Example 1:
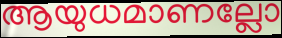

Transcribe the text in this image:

ആയുധമാണല്ലോ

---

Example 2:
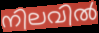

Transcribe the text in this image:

നിലവിൽ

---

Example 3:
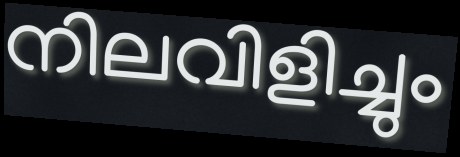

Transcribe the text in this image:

നിലവിളിച്ചും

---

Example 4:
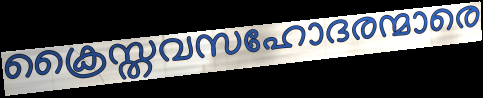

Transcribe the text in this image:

ക്രൈസ്തവസഹോദരന്മാരെ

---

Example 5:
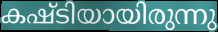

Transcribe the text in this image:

കഷ്ടിയായിരുന്നു